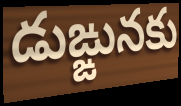
డుఙ్ఙునకు